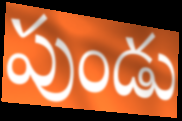
పుండు